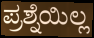
ಪ್ರಶ್ನೆಯಿಲ್ಲ